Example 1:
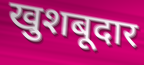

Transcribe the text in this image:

खुशबूदार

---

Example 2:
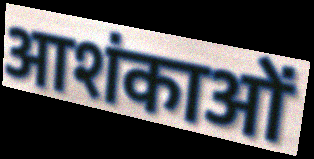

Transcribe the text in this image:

आशंकाओं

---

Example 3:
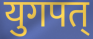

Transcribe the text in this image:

युगपत्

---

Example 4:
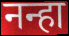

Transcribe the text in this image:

नन्हा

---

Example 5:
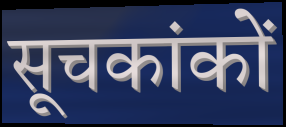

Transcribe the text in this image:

सूचकांकों